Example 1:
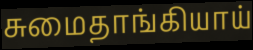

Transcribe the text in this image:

சுமைதாங்கியாய்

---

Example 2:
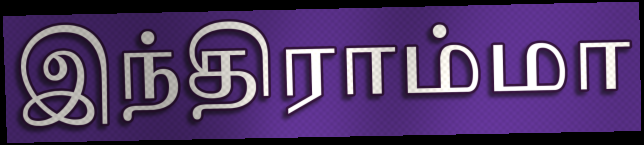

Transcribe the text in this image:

இந்திராம்மா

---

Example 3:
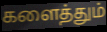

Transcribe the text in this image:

களைத்தும்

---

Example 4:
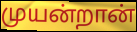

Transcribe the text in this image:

முயன்றான்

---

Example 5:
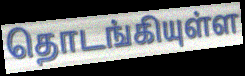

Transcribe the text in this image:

தொடங்கியுள்ள